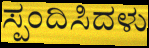
ಸ್ಪಂದಿಸಿದಳು